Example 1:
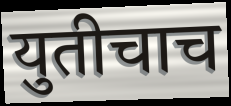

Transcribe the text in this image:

युतीचाच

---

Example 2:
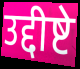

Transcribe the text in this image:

उद्दीष्टे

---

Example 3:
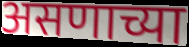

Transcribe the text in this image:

असणाच्या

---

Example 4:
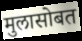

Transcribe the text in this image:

मुलासोबत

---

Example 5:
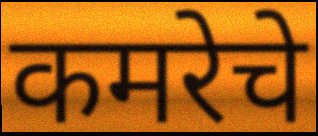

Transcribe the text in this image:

कमरेचे